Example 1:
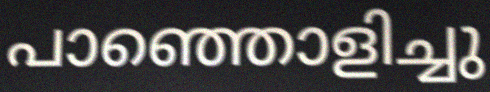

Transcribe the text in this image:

പാഞ്ഞൊളിച്ചു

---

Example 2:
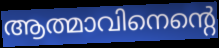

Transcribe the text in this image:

ആത്മാവിനെന്റെ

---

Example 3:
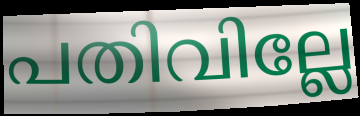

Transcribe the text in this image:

പതിവില്ലേ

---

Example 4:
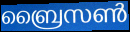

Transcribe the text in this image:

ബ്രൈസൺ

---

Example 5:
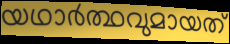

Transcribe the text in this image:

യഥാർത്ഥവുമായത്